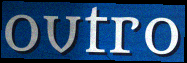
outro